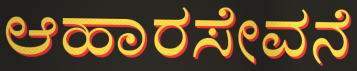
ಆಹಾರಸೇವನೆ